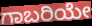
ಗಾಬರಿಯೇ